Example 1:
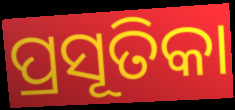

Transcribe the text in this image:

ପ୍ରସୂତିକା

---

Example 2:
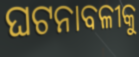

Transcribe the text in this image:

ଘଟନାବଳୀକୁ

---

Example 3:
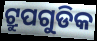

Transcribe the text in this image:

ଟ୍ରୁପଗୁଡିକ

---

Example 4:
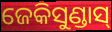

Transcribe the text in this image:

ଜେକିସୁଣ୍ଡାସ୍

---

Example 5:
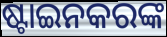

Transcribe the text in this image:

ଷ୍ଟାଇନକରଙ୍କ